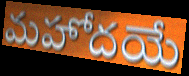
మహోదయే